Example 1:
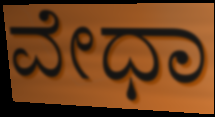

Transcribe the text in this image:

ವೇಧಾ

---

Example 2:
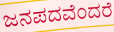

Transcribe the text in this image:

ಜನಪದವೆಂದರೆ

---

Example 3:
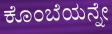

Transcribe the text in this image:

ಕೊಂಬೆಯನ್ನೇ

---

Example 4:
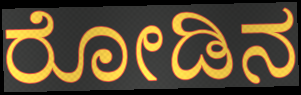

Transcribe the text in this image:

ರೋಡಿನ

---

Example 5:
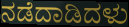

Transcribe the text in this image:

ನಡೆದಾಡಿದಳು